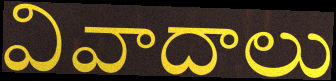
వివాదాలు